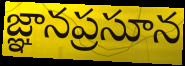
జ్ఞానప్రసూన